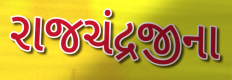
રાજચંદ્રજીના